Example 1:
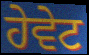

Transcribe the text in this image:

ਹੇਵੇਟ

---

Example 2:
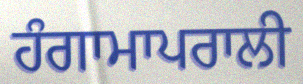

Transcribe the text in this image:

ਹੰਗਾਮਾਪਰਾਲੀ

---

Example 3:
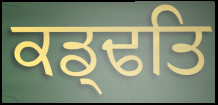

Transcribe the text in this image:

ਕਡ੍ਢਤਿ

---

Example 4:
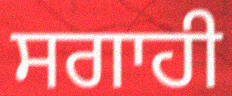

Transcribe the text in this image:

ਸਗਾਹੀ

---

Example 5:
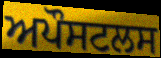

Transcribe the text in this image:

ਅਪੌਸਟਲਸ